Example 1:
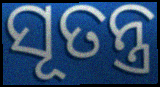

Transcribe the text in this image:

ସୂତନ୍ତ୍ର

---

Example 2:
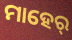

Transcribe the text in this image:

ମାହେର୍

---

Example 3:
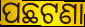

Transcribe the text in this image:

ପଛଟଣା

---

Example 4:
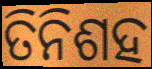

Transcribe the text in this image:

ତିନିଶହ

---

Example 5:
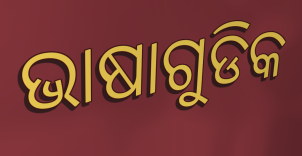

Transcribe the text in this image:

ଭାଷାଗୁଡିକ